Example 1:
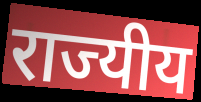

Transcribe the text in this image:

राज्यीय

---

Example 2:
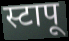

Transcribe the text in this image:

स्टापू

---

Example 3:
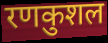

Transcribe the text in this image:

रणकुशल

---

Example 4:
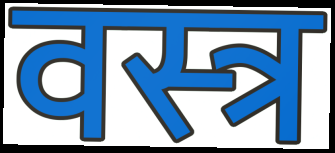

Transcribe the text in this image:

वस्त्र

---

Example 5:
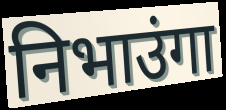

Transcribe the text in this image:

निभाउंगा